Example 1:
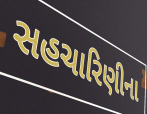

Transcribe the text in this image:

સહચારિણીના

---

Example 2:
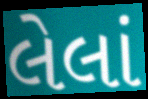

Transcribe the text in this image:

લેલાં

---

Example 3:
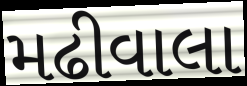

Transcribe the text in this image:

મઢીવાલા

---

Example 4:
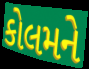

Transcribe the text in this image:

કોલમને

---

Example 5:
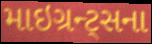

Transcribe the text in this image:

માઇગ્રન્ટ્સના